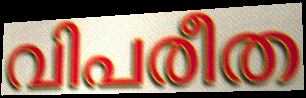
വിപരീത